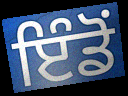
ਇੰਡੋਂ